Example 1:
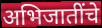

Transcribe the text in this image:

अभिजातींचे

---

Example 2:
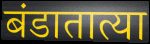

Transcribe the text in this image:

बंडातात्या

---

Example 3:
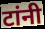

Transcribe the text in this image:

टांनी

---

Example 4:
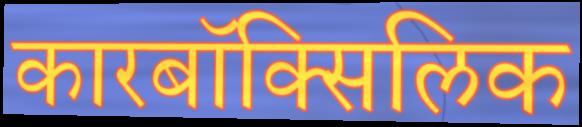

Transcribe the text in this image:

कारबॉक्सिलिक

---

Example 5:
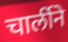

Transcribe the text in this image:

चार्लीने